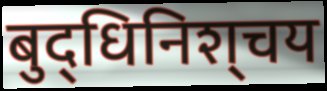
बुद्धिनिश्चय